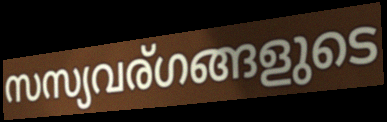
സസ്യവര്ഗങ്ങളുടെ